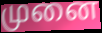
முனை